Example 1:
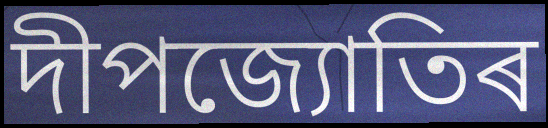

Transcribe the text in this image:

দীপজ্যোতিৰ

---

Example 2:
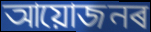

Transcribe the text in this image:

আয়োজনৰ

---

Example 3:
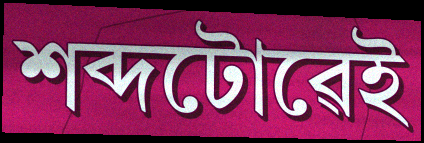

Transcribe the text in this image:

শব্দটোৱেই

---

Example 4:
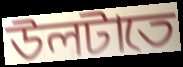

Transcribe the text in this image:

উলটাতে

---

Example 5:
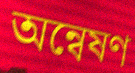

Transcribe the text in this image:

অন্বেষণ